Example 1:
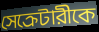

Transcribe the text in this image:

সেক্রেটারীকে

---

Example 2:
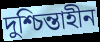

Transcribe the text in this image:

দুশ্চিন্তাহীন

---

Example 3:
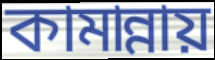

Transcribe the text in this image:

কামান্নায়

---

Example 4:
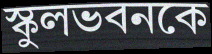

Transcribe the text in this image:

স্কুলভবনকে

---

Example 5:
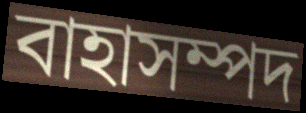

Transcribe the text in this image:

বাহাসম্পদ